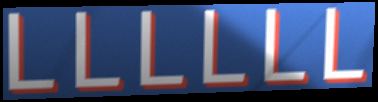
LLLLLL